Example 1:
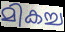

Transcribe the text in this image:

മികച്ച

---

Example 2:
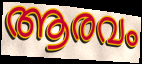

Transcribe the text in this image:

ആരവം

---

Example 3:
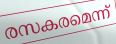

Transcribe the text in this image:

രസകരമെന്ന്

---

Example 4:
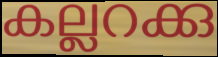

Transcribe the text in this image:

കല്ലറക്കു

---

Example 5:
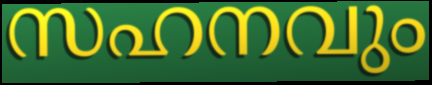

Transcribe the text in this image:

സഹനവും